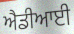
ਐਡੀਆਈ